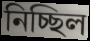
নিচ্ছিল